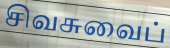
சிவசுவைப்